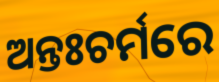
ଅନ୍ତଃଚର୍ମରେ